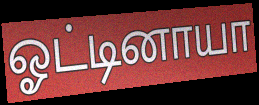
ஓட்டினாயா